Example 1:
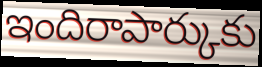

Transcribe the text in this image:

ఇందిరాపార్కుకు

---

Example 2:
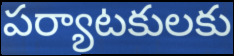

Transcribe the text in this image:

పర్యాటకులకు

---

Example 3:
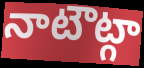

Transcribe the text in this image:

నాటౌట్గా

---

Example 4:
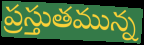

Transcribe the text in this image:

ప్రస్తుతమున్న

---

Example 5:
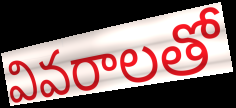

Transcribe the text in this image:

వివరాలతో